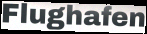
Flughafen